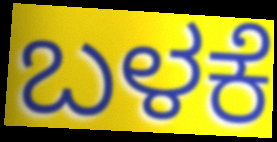
ಬಳಕೆ